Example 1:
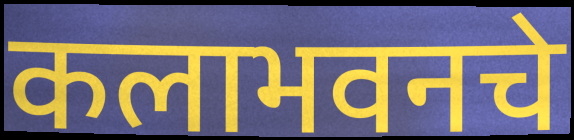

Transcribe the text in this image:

कलाभवनचे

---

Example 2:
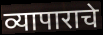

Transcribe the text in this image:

व्यापाराचे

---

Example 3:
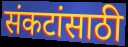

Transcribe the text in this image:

संकटांसाठी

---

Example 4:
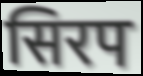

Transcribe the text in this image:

सिरप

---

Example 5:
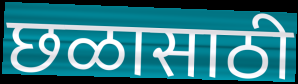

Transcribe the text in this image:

छळासाठी